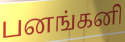
பனங்கனி